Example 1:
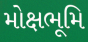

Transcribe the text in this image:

મોક્ષભૂમિ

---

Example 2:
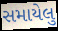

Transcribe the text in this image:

સમાયેલુ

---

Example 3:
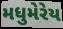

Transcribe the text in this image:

મધુમેરેય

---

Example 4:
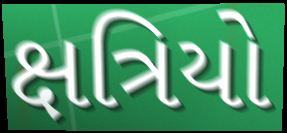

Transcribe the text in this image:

ક્ષત્રિયો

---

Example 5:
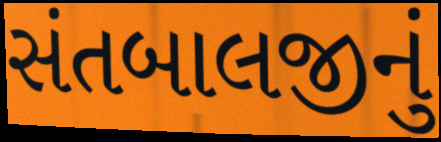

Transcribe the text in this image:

સંતબાલજીનું